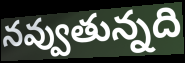
నవ్వుతున్నది